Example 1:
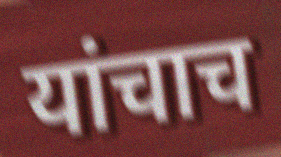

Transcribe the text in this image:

यांचाच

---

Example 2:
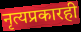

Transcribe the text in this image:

नृत्यप्रकारही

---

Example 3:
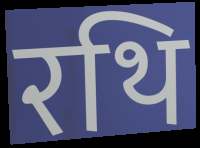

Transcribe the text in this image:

रथि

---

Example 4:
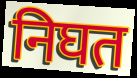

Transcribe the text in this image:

निघत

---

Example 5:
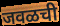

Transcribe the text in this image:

जवळची